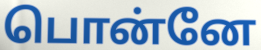
பொன்னே